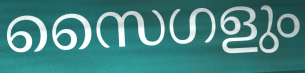
സൈഗളും